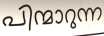
പിന്മാറുന്ന